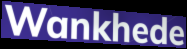
Wankhede